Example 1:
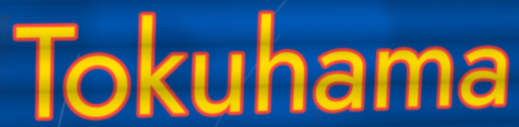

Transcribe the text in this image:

Tokuhama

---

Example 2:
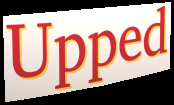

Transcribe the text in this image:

Upped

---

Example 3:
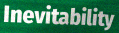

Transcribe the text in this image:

Inevitability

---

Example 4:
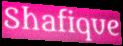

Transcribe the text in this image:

Shafique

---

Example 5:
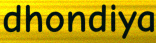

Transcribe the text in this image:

dhondiya